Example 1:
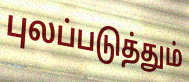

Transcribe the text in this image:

புலப்படுத்தும்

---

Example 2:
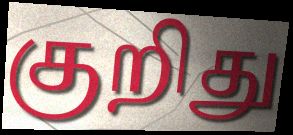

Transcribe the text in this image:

குறிது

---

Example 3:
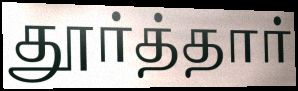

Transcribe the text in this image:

தூர்த்தார்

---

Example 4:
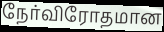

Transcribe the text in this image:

நேர்விரோதமான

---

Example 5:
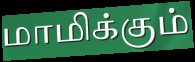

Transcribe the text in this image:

மாமிக்கும்